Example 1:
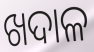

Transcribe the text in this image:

ଖଦାଳ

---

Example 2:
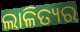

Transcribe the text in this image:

ଲାଳିତ୍ୟର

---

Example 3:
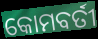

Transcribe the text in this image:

କୋମବର୍ତୀ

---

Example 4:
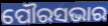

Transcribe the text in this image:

ପୌରସଭାର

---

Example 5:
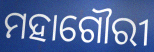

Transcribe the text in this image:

ମହାଗୌରୀ